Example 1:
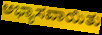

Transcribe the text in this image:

ಅಭ್ಯಾಸವಾಯಿತು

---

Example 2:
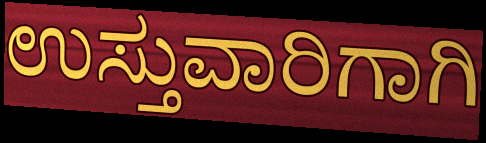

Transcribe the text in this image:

ಉಸ್ತುವಾರಿಗಾಗಿ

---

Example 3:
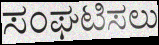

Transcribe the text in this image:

ಸಂಘಟಿಸಲು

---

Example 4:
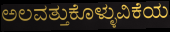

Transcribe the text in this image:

ಅಲವತ್ತುಕೊಳ್ಳುವಿಕೆಯ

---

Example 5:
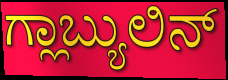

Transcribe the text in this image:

ಗ್ಲಾಬ್ಯುಲಿನ್